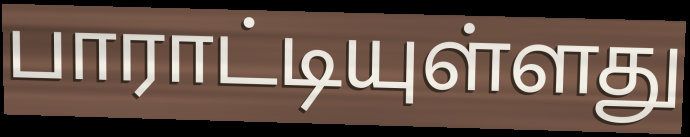
பாராட்டியுள்ளது